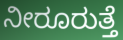
ನೀರೂರುತ್ತೆ